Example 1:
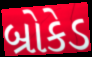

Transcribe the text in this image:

બ્રોકેડ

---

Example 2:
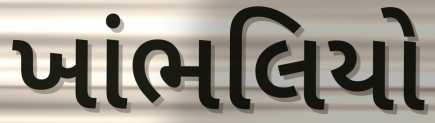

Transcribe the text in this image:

ખાંભલિયો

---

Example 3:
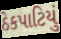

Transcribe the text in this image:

ઠેકપાટિયું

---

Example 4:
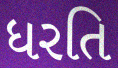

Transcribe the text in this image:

ધરતિ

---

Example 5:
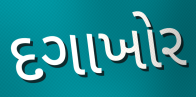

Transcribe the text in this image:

દગાખોર